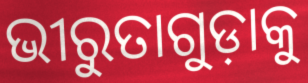
ଭୀରୁତାଗୁଡ଼ାକୁ